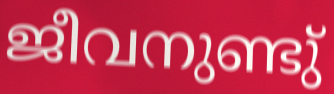
ജീവനുണ്ടു്